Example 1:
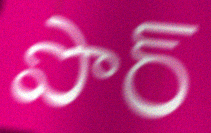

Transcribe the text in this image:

పొర్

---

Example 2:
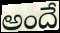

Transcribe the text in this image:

అందే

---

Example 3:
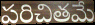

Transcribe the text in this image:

పరిచితమే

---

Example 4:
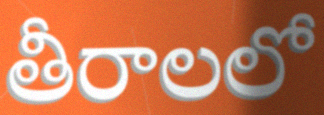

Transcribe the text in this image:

తీరాలలో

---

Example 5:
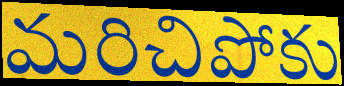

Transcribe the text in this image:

మరిచిపోకు